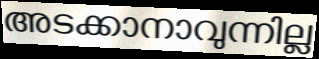
അടക്കാനാവുന്നില്ല